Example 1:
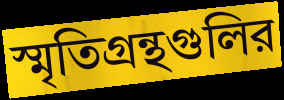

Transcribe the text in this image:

স্মৃতিগ্রন্থগুলির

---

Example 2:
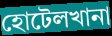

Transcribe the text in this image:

হোটেলখানা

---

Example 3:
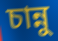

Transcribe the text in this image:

চান্নু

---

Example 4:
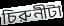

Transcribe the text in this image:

চিরুনীটা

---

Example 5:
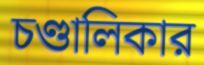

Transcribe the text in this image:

চণ্ডালিকার